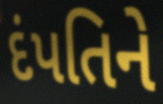
દંપતિને